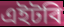
এইটবি